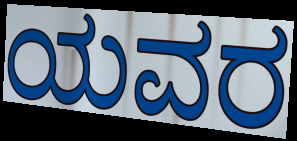
ಯವರ